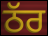
ਠੱਰ